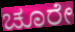
ಚೂರೇ